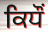
ਕਿਧੌਂ